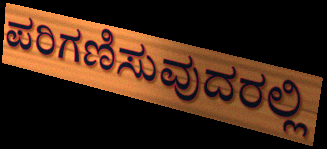
ಪರಿಗಣಿಸುವುದರಲ್ಲಿ